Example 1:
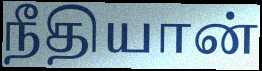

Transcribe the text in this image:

நீதியான்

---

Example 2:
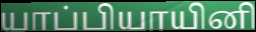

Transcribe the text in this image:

யாப்பியாயினி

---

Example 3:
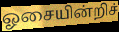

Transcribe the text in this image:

ஓசையின்றிச்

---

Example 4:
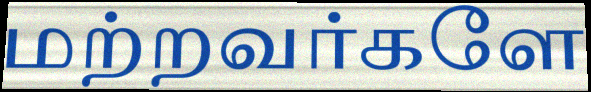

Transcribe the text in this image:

மற்றவர்களே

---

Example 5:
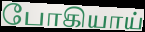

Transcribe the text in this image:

போகியாய்